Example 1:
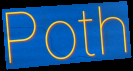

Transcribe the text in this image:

Poth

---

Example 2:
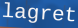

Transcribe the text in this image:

lagret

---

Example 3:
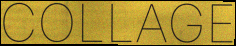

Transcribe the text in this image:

COLLAGE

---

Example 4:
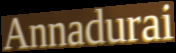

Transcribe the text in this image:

Annadurai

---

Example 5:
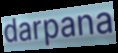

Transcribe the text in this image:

darpana